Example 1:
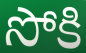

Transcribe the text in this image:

సోకి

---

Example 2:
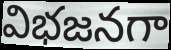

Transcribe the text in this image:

విభజనగా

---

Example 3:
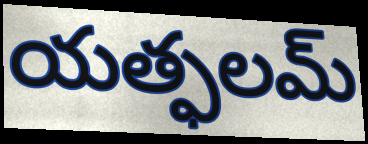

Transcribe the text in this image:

యత్ఫలమ్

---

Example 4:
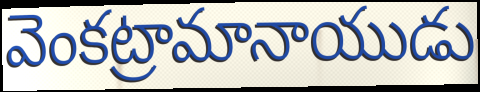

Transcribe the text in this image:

వెంకట్రామానాయుడు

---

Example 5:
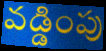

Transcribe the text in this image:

వడ్డింపు